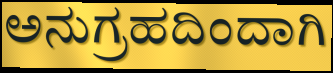
ಅನುಗ್ರಹದಿಂದಾಗಿ